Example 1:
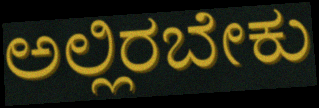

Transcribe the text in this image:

ಅಲ್ಲಿರಬೇಕು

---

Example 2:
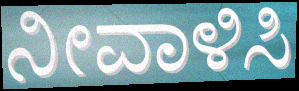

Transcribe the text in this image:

ನೀವಾಳಿಸಿ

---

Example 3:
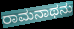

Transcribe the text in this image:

ರಾಮನಾಥನು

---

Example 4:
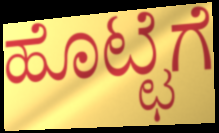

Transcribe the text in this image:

ಹೊಟ್ಟೆಗೆ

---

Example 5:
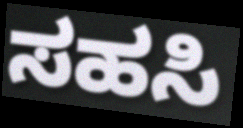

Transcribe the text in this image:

ಸಹಸಿ